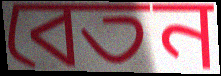
বেতন